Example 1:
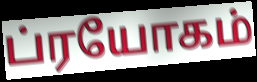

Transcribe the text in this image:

ப்ரயோகம்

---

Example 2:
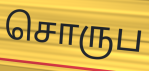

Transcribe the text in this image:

சொருப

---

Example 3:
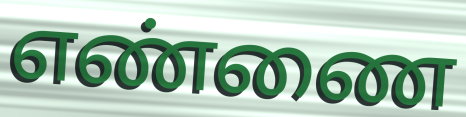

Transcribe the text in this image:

எண்ணை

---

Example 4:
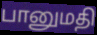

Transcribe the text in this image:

பானுமதி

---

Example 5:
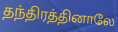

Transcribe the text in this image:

தந்திரத்தினாலே